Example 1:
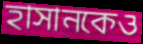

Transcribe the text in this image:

হাসানকেও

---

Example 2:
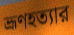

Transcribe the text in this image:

ভ্রূণহত্যার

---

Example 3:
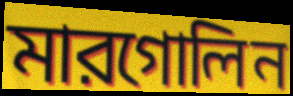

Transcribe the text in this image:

মারগোলিন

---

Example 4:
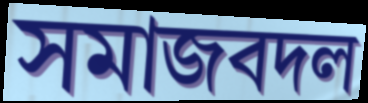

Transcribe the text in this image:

সমাজবদল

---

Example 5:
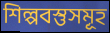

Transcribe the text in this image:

শিল্পবস্তুসমূহ